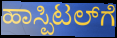
ಹಾಸ್ಪಿಟಲ್‌ಗೆ